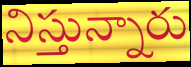
నిస్తున్నారు